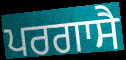
ਪਰਗਾਸੈ